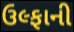
ઉલ્ફાની